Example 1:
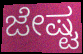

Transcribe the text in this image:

ಜೇಷ್ಟ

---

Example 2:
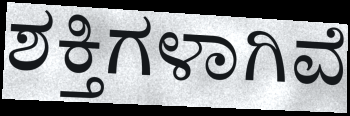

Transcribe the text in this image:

ಶಕ್ತಿಗಳಾಗಿವೆ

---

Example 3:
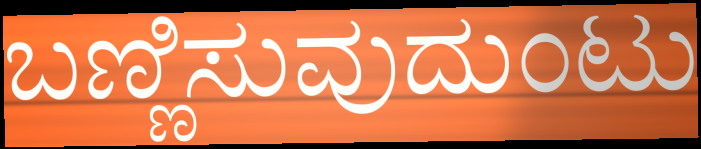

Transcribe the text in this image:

ಬಣ್ಣಿಸುವುದುಂಟು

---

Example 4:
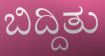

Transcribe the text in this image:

ಬಿದ್ದಿತು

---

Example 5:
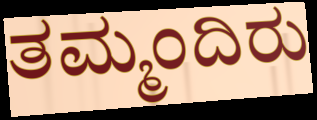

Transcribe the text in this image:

ತಮ್ಮಂದಿರು